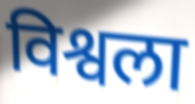
विश्वला